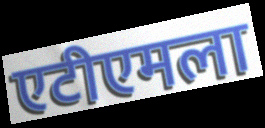
एटीएमला